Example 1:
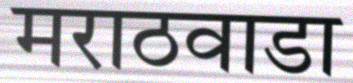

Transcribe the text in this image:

मराठवाडा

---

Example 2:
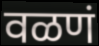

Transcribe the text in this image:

वळणं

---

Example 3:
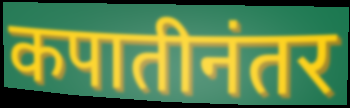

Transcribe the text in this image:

कपातीनंतर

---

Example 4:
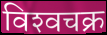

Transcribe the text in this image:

विश्वचक्र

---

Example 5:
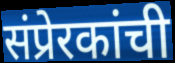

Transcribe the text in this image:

संप्रेरकांची